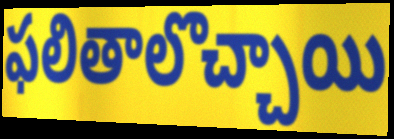
ఫలితాలొచ్చాయి